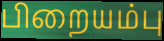
பிறையம்பு